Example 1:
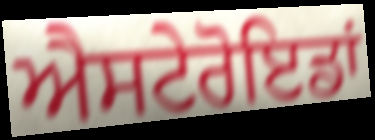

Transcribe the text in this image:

ਐਸਟੇਰੋਇਡਾਂ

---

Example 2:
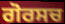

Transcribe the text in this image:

ਗੋਰਸਚ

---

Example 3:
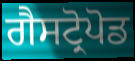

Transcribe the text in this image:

ਗੈਸਟ੍ਰੋਪੋਡ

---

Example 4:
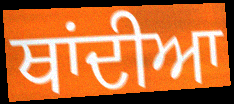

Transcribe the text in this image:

ਥਾਂਦੀਆ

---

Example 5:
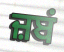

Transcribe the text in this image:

ਜ਼ਬਂ